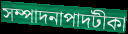
সম্পাদনাপাদটীকা